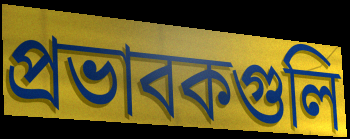
প্রভাবকগুলি